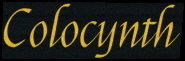
Colocynth